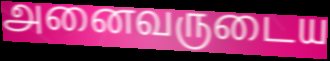
அனைவருடைய